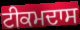
ਟੀਕਮਦਾਸ